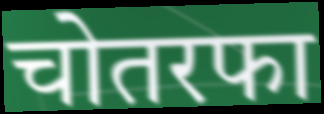
चोतरफा